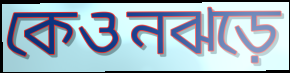
কেওনঝড়ে